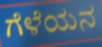
ಗೆಳೆಯನ